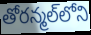
తోరన్మల్‌లోని